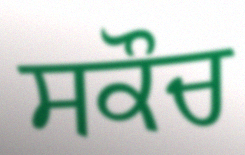
ਸਕੌਚ